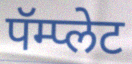
पॅम्प्लेट